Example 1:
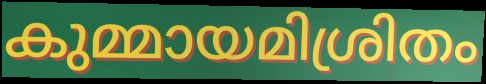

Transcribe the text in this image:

കുമ്മായമിശ്രിതം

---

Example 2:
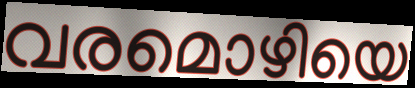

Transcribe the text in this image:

വരമൊഴിയെ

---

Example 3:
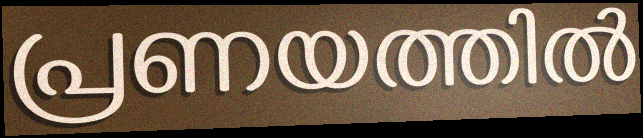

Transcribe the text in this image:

പ്രണയത്തിൽ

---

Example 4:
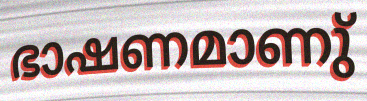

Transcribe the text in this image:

ഭാഷണമാണു്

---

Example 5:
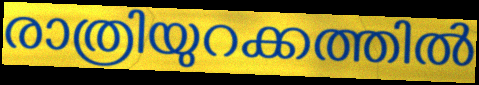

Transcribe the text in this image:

രാത്രിയുറക്കത്തിൽ